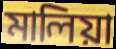
মালিয়া